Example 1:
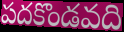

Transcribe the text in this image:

పదకొండవది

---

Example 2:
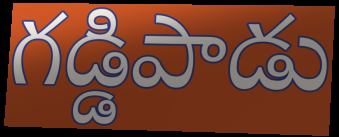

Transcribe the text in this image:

గడ్డిపాడు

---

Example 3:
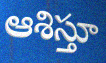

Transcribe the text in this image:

ఆశిస్తూ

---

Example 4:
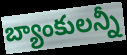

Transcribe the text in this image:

బ్యాంకులన్నీ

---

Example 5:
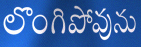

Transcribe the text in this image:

లొంగిపోవును